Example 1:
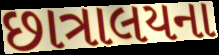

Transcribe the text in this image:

છાત્રાલયના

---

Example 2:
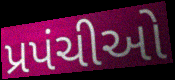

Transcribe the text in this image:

પ્રપંચીઓ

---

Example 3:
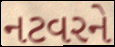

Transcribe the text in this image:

નટવરને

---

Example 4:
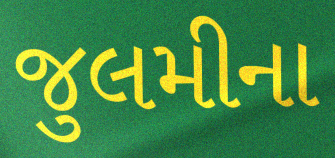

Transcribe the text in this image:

જુલમીના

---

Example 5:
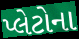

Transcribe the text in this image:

પ્લેટોના